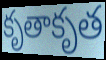
కృతాకృత